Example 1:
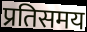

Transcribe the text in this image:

प्रतिसमय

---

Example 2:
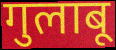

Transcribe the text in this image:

गुलाबू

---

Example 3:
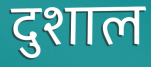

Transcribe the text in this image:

दुशाल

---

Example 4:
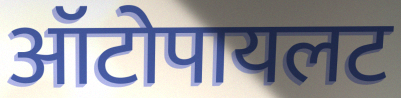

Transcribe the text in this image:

ऑटोपायलट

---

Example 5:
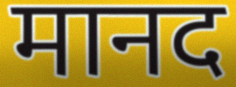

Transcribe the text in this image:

मानद